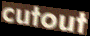
cutout